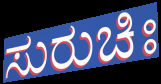
ಸುರುಚಿಃ